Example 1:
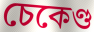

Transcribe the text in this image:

চেকেণ্ড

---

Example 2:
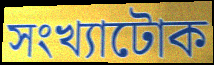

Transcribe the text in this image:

সংখ্যাটোক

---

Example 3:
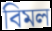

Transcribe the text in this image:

বিমল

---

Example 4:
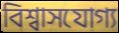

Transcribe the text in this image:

বিশ্বাসযোগ্য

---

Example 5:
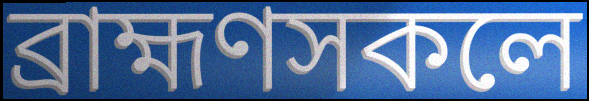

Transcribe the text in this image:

ব্ৰাহ্মণসকলে